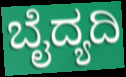
ಬೈದ್ಯದಿ